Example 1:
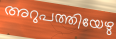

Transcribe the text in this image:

അറുപത്തിയേഴു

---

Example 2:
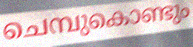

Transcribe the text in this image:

ചെമ്പുകൊണ്ടും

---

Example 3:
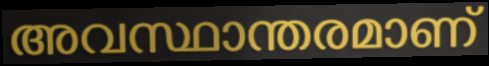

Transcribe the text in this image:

അവസ്ഥാന്തരമാണ്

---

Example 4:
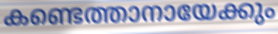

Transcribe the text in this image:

കണ്ടെത്താനായേക്കും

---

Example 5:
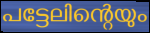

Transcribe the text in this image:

പട്ടേലിന്റെയും